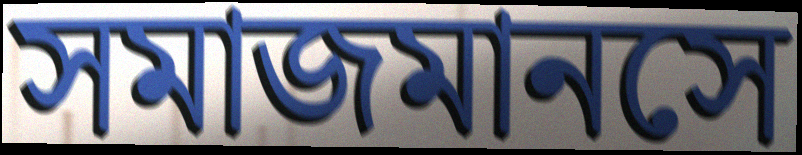
সমাজমানসে